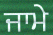
ਜਾਮੇ